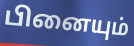
பினையும்